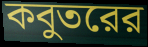
কবুতরের